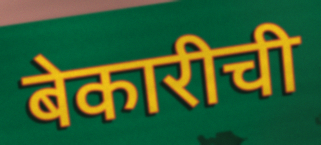
बेकारीची